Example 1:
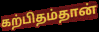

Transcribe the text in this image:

கற்பிதம்தான்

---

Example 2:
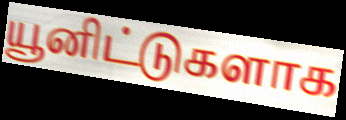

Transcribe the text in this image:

யூனிட்டுகளாக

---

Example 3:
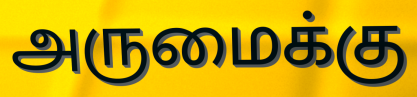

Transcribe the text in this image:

அருமைக்கு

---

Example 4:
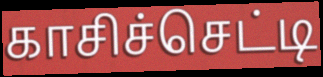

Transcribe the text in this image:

காசிச்செட்டி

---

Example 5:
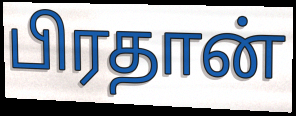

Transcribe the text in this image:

பிரதான்